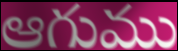
ఆగుము